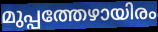
മുപ്പത്തേഴായിരം